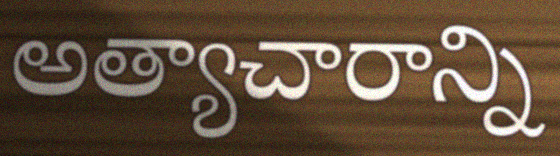
అత్యాచారాన్ని